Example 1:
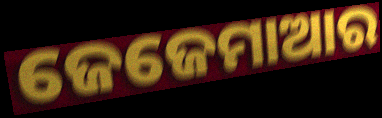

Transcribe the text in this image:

ଜେଜେମାଆର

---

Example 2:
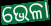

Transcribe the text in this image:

ଭେଳା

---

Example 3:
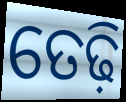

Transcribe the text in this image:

ତେଢ଼ି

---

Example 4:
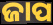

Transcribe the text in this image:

ଜାପ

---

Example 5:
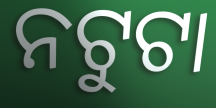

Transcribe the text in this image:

ନଟୁଟା